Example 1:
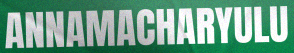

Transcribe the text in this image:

ANNAMACHARYULU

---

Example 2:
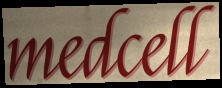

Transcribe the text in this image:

medcell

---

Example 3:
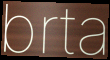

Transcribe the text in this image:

brta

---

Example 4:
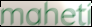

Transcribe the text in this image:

maheti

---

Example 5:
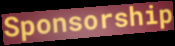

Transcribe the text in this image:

Sponsorship